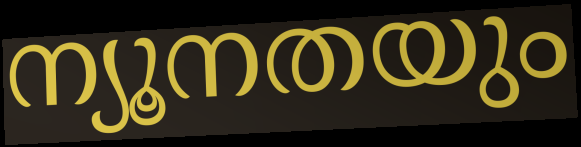
ന്യൂനതയും